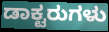
ಡಾಕ್ಟರುಗಳು